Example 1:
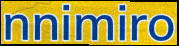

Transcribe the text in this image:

nnimiro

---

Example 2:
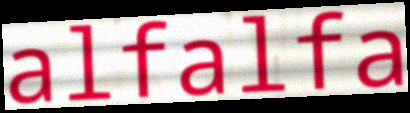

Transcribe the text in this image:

alfalfa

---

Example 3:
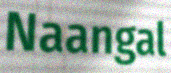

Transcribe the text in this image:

Naangal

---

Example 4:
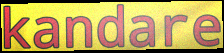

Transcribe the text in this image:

kandare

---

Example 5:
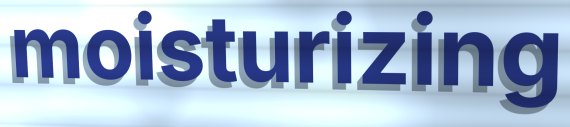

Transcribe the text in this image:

moisturizing